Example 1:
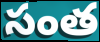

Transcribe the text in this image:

సంత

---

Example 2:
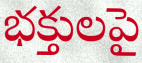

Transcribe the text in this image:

భక్తులపై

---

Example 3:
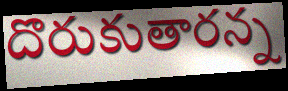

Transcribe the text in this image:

దొరుకుతారన్న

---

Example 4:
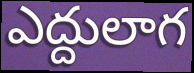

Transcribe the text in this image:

ఎద్దులాగ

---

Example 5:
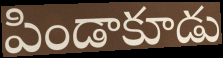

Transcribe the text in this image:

పిండాకూడు